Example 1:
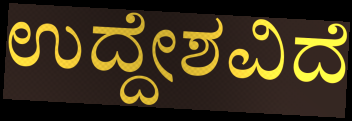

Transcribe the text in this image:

ಉದ್ದೇಶವಿದೆ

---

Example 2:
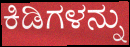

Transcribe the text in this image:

ಕಿಡಿಗಳನ್ನು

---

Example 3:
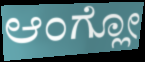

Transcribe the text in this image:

ಆಂಗ್ಲೋ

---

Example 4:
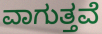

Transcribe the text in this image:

ವಾಗುತ್ತವೆ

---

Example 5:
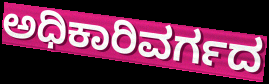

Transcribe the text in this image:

ಅಧಿಕಾರಿವರ್ಗದ